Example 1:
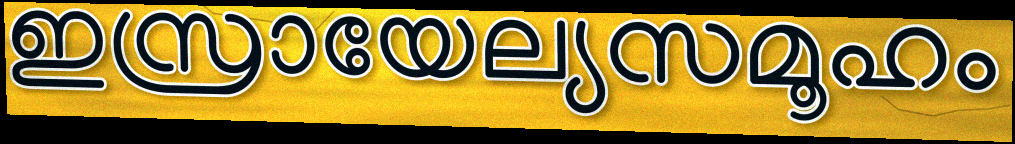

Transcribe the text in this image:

ഇസ്രായേല്യസമൂഹം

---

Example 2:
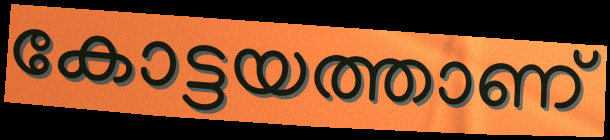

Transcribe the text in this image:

കോട്ടയത്താണ്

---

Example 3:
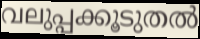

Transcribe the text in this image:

വലുപ്പക്കൂടുതൽ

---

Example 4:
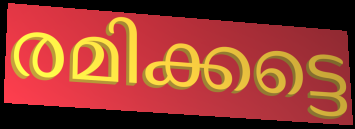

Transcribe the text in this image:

രമിക്കട്ടെ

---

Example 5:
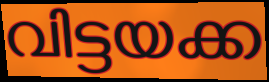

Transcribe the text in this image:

വിട്ടയക്ക